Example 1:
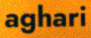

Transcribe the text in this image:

aghari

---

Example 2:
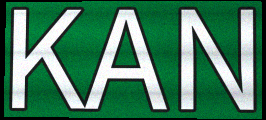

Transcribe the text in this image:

KAN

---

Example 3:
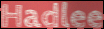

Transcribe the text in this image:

Hadlee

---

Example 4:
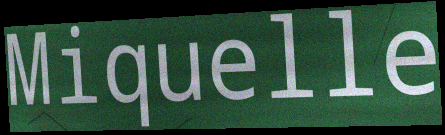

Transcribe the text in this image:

Miquelle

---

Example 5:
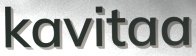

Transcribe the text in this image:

kavitaa